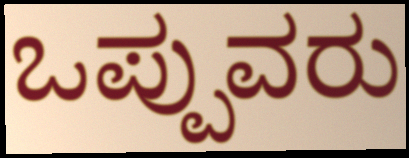
ಒಪ್ಪುವರು